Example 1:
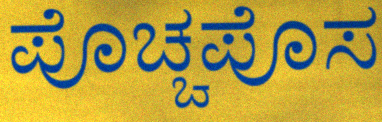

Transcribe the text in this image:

ಪೊಚ್ಚಪೊಸ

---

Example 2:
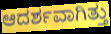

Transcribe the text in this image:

ಆದರ್ಶವಾಗಿತ್ತು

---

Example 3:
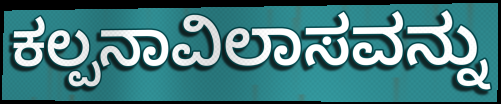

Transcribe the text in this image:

ಕಲ್ಪನಾವಿಲಾಸವನ್ನು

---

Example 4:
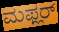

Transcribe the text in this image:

ಮಫ್ಲರ್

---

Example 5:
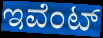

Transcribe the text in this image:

ಇವೆಂಟ್